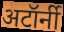
अटॉर्नी